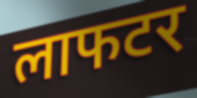
लाफटर